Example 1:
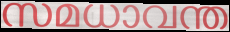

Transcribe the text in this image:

സമധാവന്ത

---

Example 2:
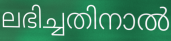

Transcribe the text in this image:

ലഭിച്ചതിനാൽ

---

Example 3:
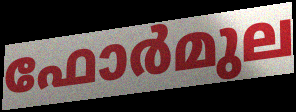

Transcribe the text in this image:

ഫോർമുല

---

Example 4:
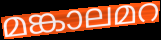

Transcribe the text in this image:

മങ്കാലമറ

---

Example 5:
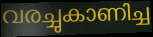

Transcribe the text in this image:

വരച്ചുകാണിച്ച